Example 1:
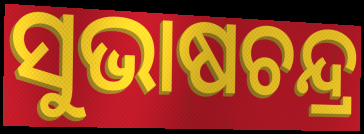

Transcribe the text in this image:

ସୁଭାଷଚନ୍ଦ୍ର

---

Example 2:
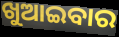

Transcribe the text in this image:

ଖୁଆଇବାର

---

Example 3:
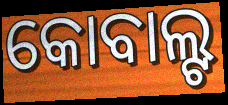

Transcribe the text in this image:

କୋବାଲ୍ଟ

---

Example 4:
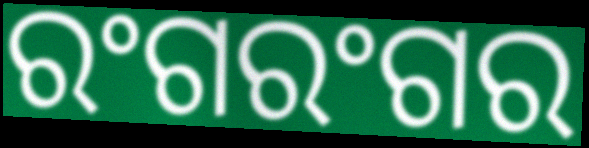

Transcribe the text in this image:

ରଂଗରଂଗର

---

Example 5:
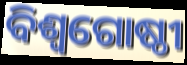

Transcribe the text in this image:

ବିଶ୍ୱଗୋଷ୍ଠୀ